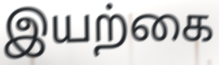
இயற்கை